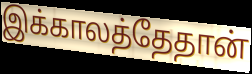
இக்காலத்தேதான்